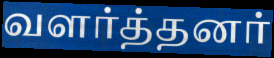
வளர்த்தனர்